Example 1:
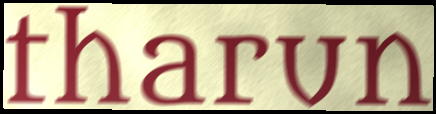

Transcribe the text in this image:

tharun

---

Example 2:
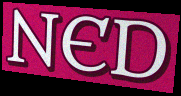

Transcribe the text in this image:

NED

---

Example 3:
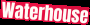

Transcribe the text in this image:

Waterhouse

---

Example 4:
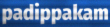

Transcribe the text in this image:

padippakam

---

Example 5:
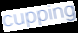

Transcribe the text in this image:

cupping